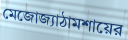
মেজোজ্যাঠামশায়ের